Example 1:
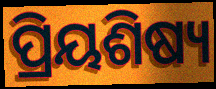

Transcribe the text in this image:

ପ୍ରିୟଶିଷ୍ୟ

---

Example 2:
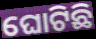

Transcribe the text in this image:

ଘୋଟିଛି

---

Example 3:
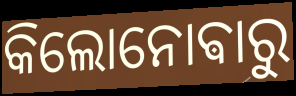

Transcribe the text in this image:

କିଲୋନୋଵାରୁ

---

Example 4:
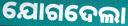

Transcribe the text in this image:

ଯୋଗଦେଲା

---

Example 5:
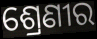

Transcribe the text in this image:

ଶ୍ରେଣୀର